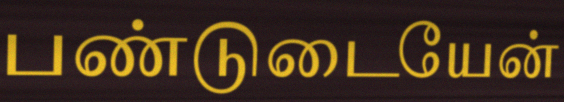
பண்டுடையேன்